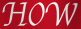
HOW